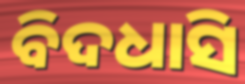
ବିଦଧାସି